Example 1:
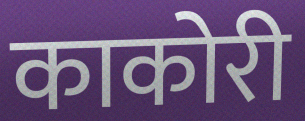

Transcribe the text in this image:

काकोरी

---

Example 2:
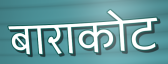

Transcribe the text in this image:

बाराकोट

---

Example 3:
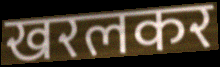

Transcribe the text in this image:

खरलकर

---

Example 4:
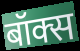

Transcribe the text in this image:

बॉक्‍स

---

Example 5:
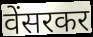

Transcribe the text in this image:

वेंसरकर